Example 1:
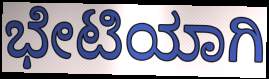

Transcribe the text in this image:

ಭೇಟಿಯಾಗಿ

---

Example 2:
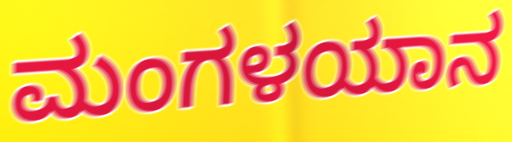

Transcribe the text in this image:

ಮಂಗಳಯಾನ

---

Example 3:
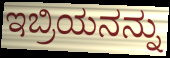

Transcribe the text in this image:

ಇಬ್ರಿಯನನ್ನು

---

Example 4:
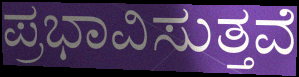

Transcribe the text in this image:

ಪ್ರಭಾವಿಸುತ್ತವೆ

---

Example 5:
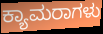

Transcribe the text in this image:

ಕ್ಯಾಮರಾಗಳು